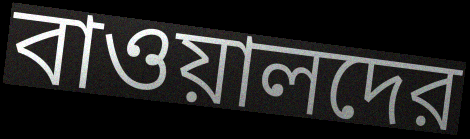
বাওয়ালদের